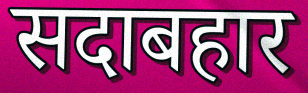
सदाबहार